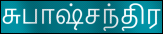
சுபாஷ்சந்திர